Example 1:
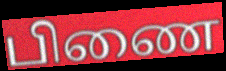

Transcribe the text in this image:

பிணை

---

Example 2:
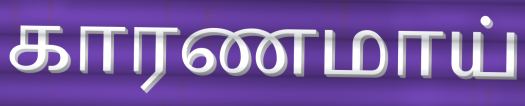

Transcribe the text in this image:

காரணமாய்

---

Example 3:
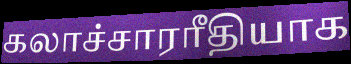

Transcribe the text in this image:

கலாச்சாரரீதியாக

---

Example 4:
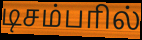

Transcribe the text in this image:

டிசம்பரில்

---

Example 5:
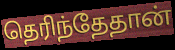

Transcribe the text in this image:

தெரிந்தேதான்